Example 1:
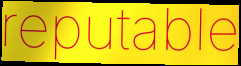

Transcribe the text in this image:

reputable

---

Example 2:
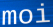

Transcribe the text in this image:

moi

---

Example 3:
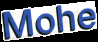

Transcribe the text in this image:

Mohe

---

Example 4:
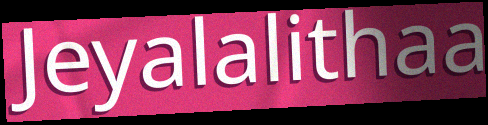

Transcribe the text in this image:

Jeyalalithaa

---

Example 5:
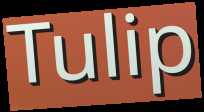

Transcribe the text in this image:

Tulip